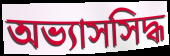
অভ্যাসসিদ্ধ